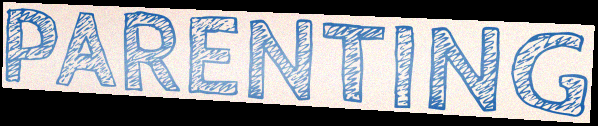
PARENTING